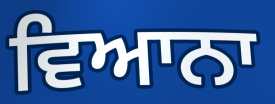
ਵਿਆਨਾ